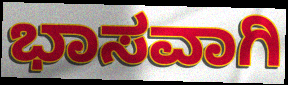
ಭಾಸವಾಗಿ